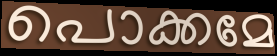
പൊക്കമേ